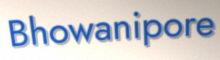
Bhowanipore